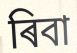
ৰিবা